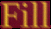
Fill